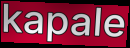
kapale